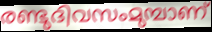
രണ്ടുദിവസംമുമ്പാണ്